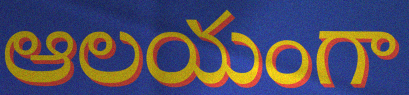
ఆలయంగా